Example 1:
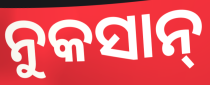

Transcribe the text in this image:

ନୁକସାନ୍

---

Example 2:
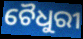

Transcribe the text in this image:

ଚୈଧୁରୀ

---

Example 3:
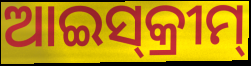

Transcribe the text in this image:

ଆଇସ୍‌କ୍ରୀମ୍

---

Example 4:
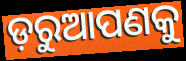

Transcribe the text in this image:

ଡ଼ରୁଆପଣକୁ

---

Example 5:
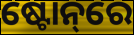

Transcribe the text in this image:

ଷ୍ଟୋନ୍‌ରେ